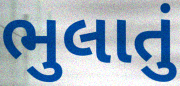
ભુલાતું